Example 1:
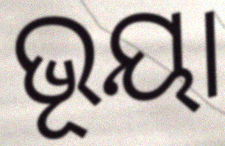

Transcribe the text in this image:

ଭୂୟା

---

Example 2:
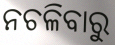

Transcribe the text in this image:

ନଚଳିବାରୁ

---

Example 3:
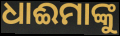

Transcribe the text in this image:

ଧାଈମାଙ୍କୁ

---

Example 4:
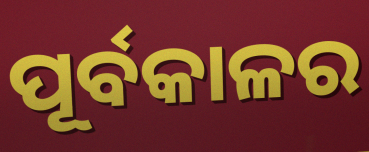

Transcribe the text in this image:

ପୂର୍ବକାଳର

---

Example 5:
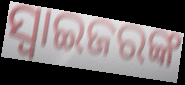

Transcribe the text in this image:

ସ୍ଵାଇଜରଙ୍କ